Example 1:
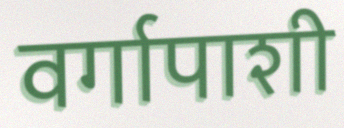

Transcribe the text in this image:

वर्गापाशी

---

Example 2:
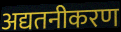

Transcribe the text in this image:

अद्यतनीकरण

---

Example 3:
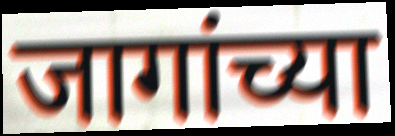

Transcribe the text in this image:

जागांच्या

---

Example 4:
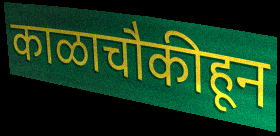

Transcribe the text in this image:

काळाचौकीहून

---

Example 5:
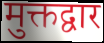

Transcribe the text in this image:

मुक्तद्वार